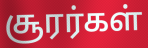
சூரர்கள்